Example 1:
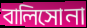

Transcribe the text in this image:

বালিসোনা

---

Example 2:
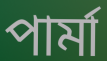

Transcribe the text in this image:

পার্মা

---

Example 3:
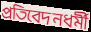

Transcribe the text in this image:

প্রতিবেদনধর্মী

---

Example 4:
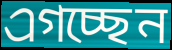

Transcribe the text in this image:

এগচ্ছেন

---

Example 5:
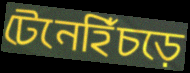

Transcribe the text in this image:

টেনেহিঁচড়ে